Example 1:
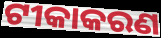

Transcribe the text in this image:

ଟୀକାକରଣ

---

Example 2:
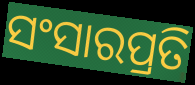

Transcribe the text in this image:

ସଂସାରପ୍ରତି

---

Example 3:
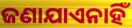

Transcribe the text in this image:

ଜଣାଯାଏନାହିଁ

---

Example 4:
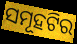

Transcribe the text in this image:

ସମୂହଟିର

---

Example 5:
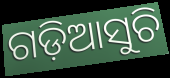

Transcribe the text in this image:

ଗଡ଼ିଆସୁଚି